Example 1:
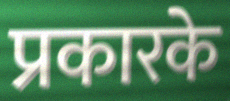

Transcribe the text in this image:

प्रकारके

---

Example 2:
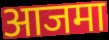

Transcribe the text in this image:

आजमा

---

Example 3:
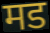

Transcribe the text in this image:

मड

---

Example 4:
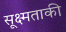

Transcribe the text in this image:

सूक्ष्मताकी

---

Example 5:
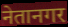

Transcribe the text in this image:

नेतानगर